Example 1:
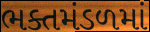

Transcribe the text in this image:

ભક્તમંડળમાં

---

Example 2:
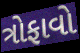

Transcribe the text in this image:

ત્રોફાવો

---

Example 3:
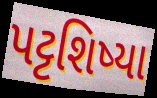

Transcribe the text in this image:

પટ્ટશિષ્યા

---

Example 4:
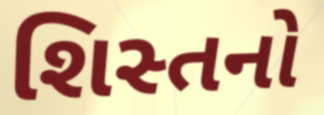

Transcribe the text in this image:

શિસ્તનો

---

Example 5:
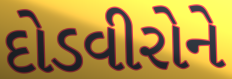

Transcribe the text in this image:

દોડવીરોને